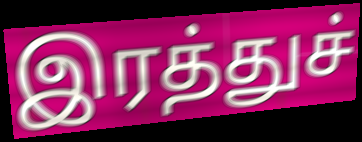
இரத்துச்